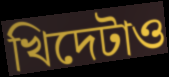
খিদেটাও